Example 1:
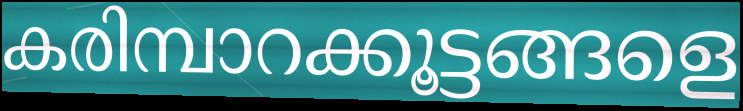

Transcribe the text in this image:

കരിമ്പാറക്കൂട്ടങ്ങളെ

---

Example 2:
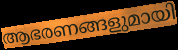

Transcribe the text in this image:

ആഭരണങ്ങളുമായി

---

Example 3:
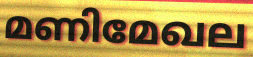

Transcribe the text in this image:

മണിമേഖല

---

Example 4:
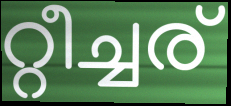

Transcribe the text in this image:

റ്റീച്ചര്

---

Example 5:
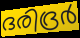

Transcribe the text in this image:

ദരിദ്രർ